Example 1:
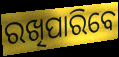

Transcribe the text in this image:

ରଖିପାରିବେ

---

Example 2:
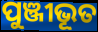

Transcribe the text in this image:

ପୁଞ୍ଜୀଭୂତ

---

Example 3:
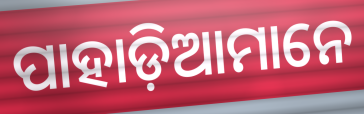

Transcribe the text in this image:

ପାହାଡ଼ିଆମାନେ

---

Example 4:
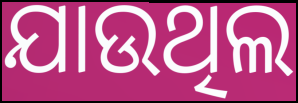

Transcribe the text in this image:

ଯାଉଥିଲ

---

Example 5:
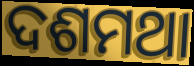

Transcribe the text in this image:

ଦଶମଥା